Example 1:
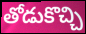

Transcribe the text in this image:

తోడుకొచ్చి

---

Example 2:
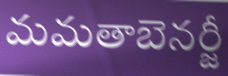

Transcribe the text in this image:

మమతాబెనర్జీ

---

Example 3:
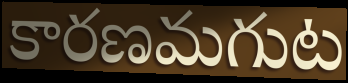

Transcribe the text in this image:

కారణమగుట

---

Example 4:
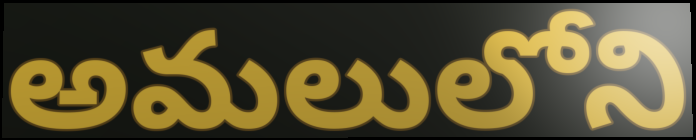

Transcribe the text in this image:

అమలులోని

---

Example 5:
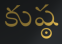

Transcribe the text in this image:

కుష్ఠ